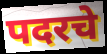
पदरचे